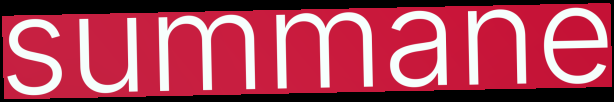
summane